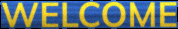
WELCOME